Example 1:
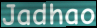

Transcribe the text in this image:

Jadhao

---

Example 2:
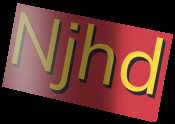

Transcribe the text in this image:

Njhd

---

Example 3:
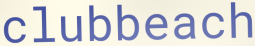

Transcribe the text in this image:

clubbeach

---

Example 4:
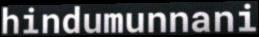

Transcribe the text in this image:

hindumunnani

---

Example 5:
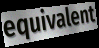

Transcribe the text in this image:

equivalent